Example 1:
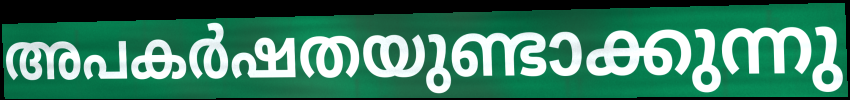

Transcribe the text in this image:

അപകർഷതയുണ്ടാക്കുന്നു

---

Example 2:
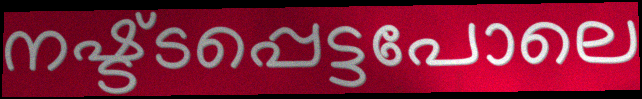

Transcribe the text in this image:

നഷ്ട്ടപ്പെട്ടപോലെ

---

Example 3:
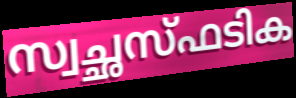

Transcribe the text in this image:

സ്വച്ഛസ്ഫടിക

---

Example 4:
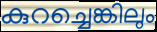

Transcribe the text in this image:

കുറച്ചെങ്കിലും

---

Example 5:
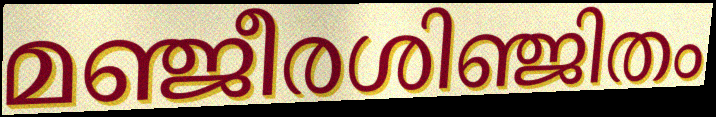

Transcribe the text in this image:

മഞ്ജീരശിഞ്ജിതം